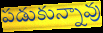
పడుకున్నావు